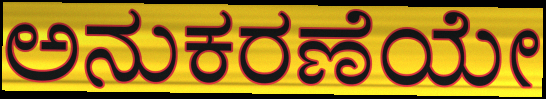
ಅನುಕರಣೆಯೇ